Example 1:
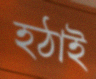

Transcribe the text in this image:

হঠাই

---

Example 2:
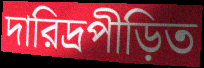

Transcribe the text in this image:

দারিদ্রপীড়িত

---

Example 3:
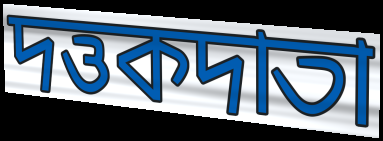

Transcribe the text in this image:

দত্তকদাতা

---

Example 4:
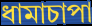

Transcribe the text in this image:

ধামাচাপা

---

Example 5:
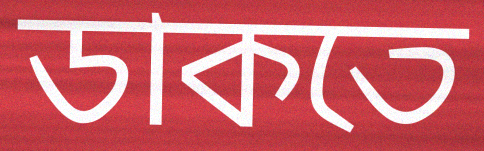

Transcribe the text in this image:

ডাকতে